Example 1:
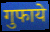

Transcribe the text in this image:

गुफाये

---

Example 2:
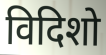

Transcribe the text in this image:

विदिशो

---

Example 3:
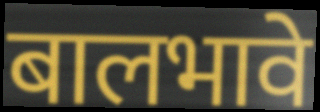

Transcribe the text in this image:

बालभावे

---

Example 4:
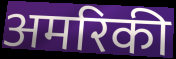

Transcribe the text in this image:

अमरिकी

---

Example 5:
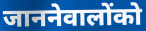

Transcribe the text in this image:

जाननेवालोंको